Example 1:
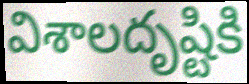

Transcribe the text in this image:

విశాలదృష్టికి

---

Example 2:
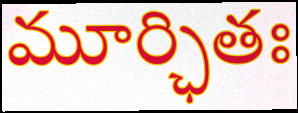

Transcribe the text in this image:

మూర్ఛితః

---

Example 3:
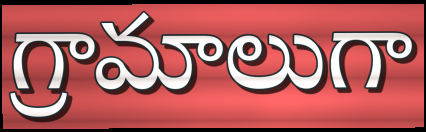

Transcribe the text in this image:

గ్రామాలుగా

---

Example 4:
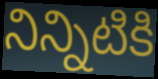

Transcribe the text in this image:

నిన్నిటికి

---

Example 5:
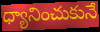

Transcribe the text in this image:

ధ్యానించుకునే